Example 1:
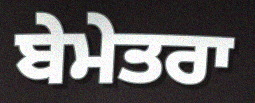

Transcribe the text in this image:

ਬੇਮੇਤਰਾ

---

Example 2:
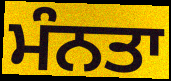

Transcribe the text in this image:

ਮੰਨਤਾ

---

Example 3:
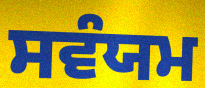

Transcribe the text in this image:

ਸਵੰਯਮ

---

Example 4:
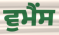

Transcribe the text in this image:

ਵੁਮੈਂਸ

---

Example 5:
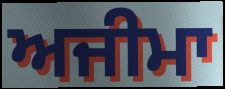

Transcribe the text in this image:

ਅਜੀਮਾ